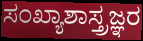
ಸಂಖ್ಯಾಶಾಸ್ತ್ರಜ್ಞರ